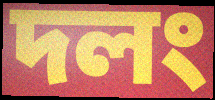
দলং